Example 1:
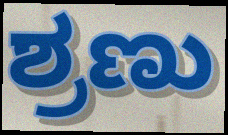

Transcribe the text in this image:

ಶ್ರಣು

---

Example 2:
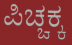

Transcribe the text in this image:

ಪಿಚ್ಚಕ್ಕ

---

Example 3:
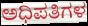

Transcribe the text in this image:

ಅಧಿಪತಿಗಳ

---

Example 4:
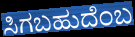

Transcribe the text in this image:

ಸಿಗಬಹುದೆಂಬ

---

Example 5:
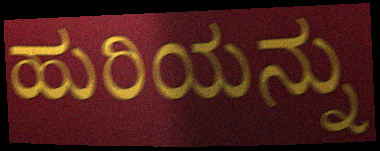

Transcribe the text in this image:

ಹುರಿಯನ್ನು